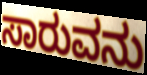
ಸಾರುವನು